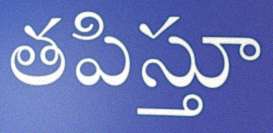
తపిస్తూ